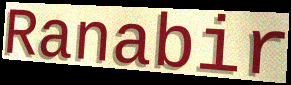
Ranabir